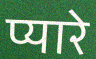
प्यारे